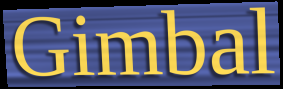
Gimbal